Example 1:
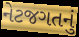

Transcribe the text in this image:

નેટજગતનું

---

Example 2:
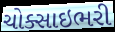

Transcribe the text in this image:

ચોક્સાઇભરી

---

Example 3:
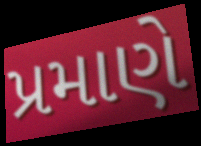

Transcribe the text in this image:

પ્રમાણે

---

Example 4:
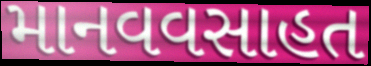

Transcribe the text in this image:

માનવવસાહત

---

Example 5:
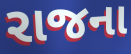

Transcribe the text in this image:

રાજના